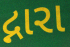
દ્નારા